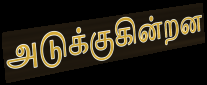
அடுக்குகின்றன